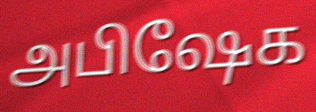
அபிஷேக